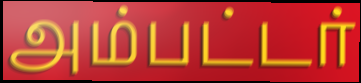
அம்பட்டர்